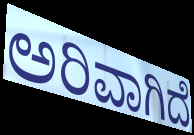
ಅರಿವಾಗಿದೆ